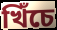
খিঁচে